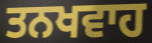
ਤਨਖਵਾਹ